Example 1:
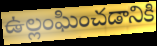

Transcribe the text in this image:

ఉల్లంఘించడానికి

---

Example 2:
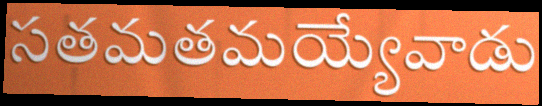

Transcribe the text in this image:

సతమతమయ్యేవాడు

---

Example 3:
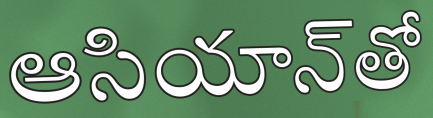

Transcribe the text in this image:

ఆసియాన్‌తో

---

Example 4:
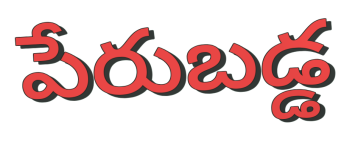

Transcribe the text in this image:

పేరుబడ్డ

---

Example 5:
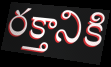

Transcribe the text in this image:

రక్తానికి